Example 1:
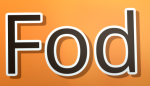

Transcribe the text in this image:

Fod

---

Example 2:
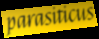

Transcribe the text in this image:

parasiticus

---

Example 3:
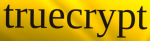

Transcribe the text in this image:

truecrypt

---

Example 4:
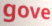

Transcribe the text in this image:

gove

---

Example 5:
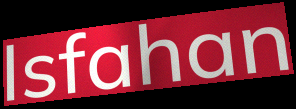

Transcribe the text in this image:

Isfahan